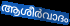
ആശീർവാദം